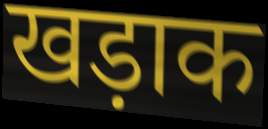
खड़ाक